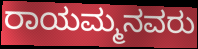
ರಾಯಮ್ಮನವರು